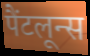
पैंटलून्स